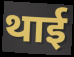
थाई